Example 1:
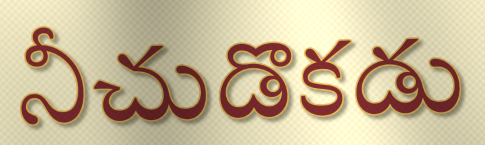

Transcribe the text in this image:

నీచుడొకడు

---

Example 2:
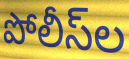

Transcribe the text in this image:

పోలీస్‌ల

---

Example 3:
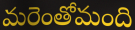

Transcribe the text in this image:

మరెంతోమంది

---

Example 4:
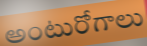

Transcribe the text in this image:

అంటురోగాలు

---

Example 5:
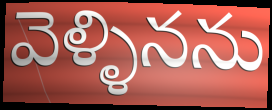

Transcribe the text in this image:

వెళ్ళినను